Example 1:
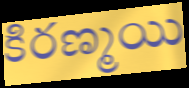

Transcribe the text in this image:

కిరణ్మయి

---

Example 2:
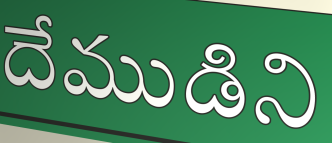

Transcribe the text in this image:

దేముడిని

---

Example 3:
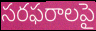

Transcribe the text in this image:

సరఫరాలపై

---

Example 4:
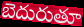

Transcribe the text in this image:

బెదురుతూ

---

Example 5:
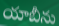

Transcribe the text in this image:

యాబీను